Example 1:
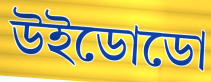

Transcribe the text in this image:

উইডোডো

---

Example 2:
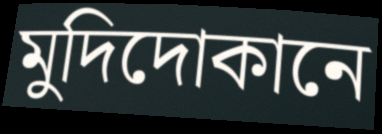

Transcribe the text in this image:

মুদিদোকানে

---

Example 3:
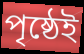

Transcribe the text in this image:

পৃষ্ঠেই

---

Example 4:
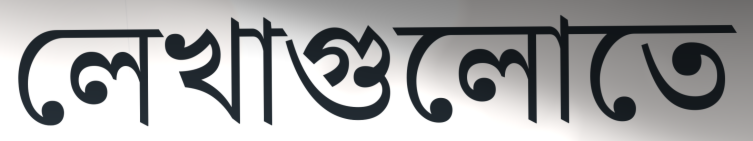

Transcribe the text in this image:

লেখাগুলোতে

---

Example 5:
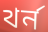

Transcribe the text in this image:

থর্ন